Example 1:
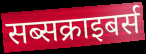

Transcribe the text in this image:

सब्सक्राइबर्स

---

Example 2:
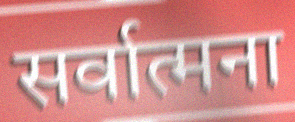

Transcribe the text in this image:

सर्वात्मना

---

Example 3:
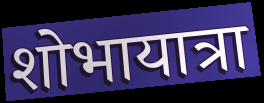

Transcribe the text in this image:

शोभायात्रा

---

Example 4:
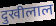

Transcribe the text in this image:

दुखीलाल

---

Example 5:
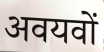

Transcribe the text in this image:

अवयवों